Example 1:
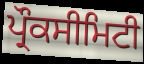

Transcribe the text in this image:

ਪ੍ਰੌਕਸੀਮਿਟੀ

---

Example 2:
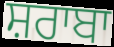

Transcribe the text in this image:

ਸ਼ਰਾਬਾ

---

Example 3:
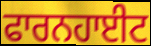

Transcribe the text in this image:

ਫਾਰਨਹਾਈਟ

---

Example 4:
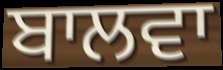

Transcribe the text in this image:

ਬਾਲਵਾ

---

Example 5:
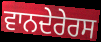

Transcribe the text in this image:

ਵਾਨਦੇਰੇਰਸ